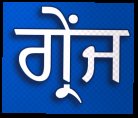
ਗ੍ਰੇਂਜ